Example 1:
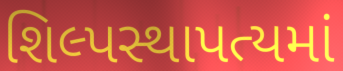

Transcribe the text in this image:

શિલ્પસ્થાપત્યમાં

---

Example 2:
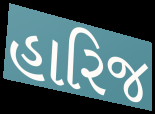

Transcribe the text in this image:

હારિજ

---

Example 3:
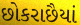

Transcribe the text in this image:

છોકરાછૈયાં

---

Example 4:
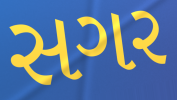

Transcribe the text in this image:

સગર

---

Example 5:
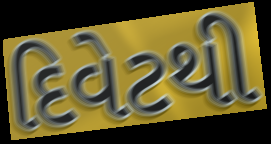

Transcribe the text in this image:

દિવેટથી